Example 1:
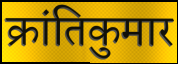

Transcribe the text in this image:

क्रांतिकुमार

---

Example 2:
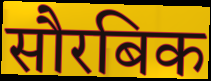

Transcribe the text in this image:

सौरबिक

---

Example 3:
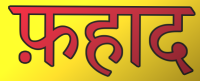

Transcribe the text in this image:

फ़हाद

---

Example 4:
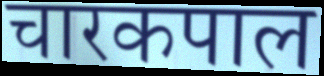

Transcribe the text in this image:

चारकपाल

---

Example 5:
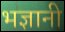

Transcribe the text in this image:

भज्ञानी